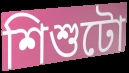
শিশুটো